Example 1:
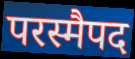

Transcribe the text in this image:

परस्मैपद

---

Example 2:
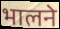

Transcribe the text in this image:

भालने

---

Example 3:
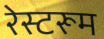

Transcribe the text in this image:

रेस्टरूम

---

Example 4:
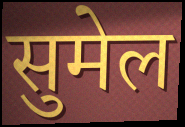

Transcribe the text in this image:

सुमेल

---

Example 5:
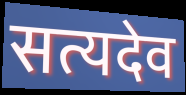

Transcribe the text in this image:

सत्यदेव